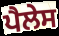
ਪੈਲੇਸ